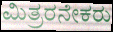
ಮಿತ್ರರನೇಕರು